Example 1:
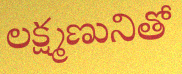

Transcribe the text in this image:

లక్ష్మణునితో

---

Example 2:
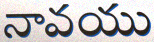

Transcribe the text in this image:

నావయు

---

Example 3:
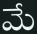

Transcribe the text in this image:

మే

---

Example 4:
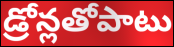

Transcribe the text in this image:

డ్రోన్లతోపాటు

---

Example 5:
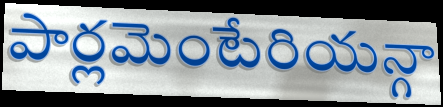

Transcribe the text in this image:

పార్లమెంటేరియన్గా